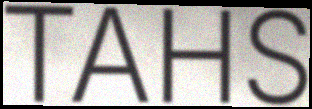
TAHS